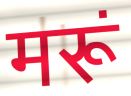
मरूं